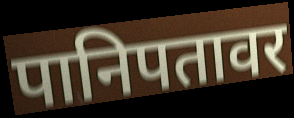
पानिपतावर